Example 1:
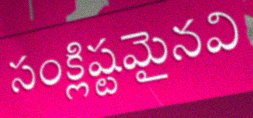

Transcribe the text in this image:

సంక్లిష్టమైనవి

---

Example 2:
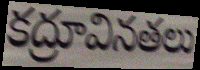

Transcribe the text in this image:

కద్రూవినతలు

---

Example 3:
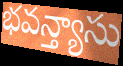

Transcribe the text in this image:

భవన్త్యాసు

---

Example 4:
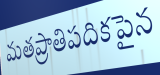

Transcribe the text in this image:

మతప్రాతిపదికపైన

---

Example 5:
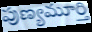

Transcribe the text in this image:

పుణ్యమూర్తి